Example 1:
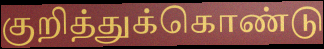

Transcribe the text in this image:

குறித்துக்கொண்டு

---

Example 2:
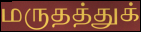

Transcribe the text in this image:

மருதத்துக்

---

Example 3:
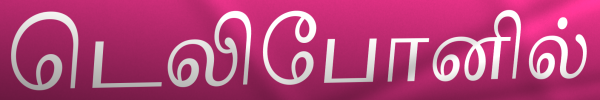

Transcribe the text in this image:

டெலிபோனில்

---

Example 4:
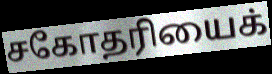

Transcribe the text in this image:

சகோதரியைக்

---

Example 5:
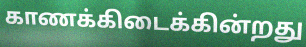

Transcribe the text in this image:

காணக்கிடைக்கின்றது